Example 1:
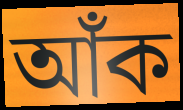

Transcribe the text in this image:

আঁক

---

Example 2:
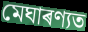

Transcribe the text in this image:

মেঘাৰণ্যত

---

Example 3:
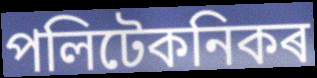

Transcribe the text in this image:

পলিটেকনিকৰ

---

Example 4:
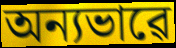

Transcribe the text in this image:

অন্যভাৱে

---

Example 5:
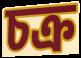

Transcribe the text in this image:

চক্ৰ